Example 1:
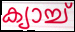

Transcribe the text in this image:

ക്യാച്ച്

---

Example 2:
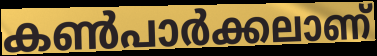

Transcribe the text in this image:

കൺപാർക്കലാണ്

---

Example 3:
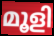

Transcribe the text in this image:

മൂളി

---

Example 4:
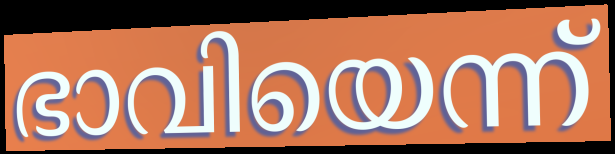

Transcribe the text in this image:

ഭാവിയെന്ന്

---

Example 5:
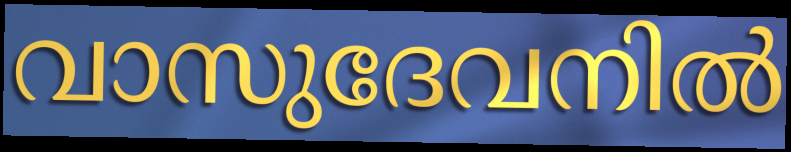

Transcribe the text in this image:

വാസുദേവനിൽ